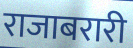
राजाबरारी